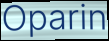
Oparin